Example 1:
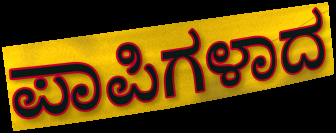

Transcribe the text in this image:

ಪಾಪಿಗಳಾದ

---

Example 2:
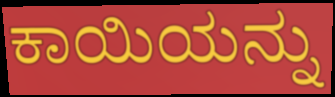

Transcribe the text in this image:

ಕಾಯಿಯನ್ನು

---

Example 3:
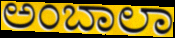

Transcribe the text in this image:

ಅಂಬಾಲಾ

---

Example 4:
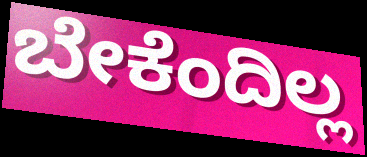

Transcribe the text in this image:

ಬೇಕೆಂದಿಲ್ಲ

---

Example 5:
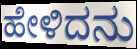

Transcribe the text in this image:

ಹೇಳಿದನು